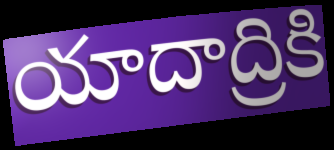
యాదాద్రికి